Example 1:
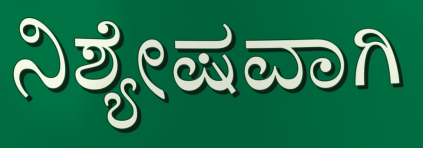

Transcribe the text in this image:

ನಿಶ್ಯೇಷವಾಗಿ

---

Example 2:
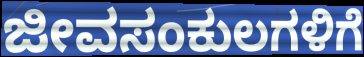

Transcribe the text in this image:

ಜೀವಸಂಕುಲಗಳಿಗೆ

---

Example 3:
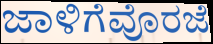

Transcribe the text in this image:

ಜಾಳಿಗೆವೊರಜೆ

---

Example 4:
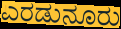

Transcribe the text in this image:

ಎರಡುನೂರು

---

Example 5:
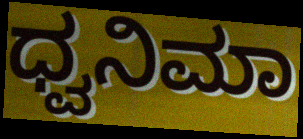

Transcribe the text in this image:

ಧ್ವನಿಮಾ